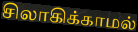
சிலாகிக்காமல்